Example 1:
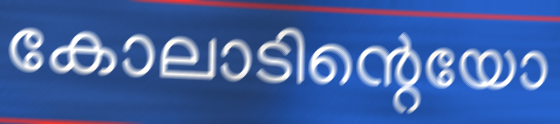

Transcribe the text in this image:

കോലാടിന്റെയോ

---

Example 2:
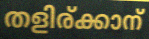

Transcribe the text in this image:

തളിര്ക്കാന്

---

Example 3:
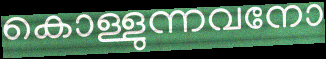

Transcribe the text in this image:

കൊള്ളുന്നവനോ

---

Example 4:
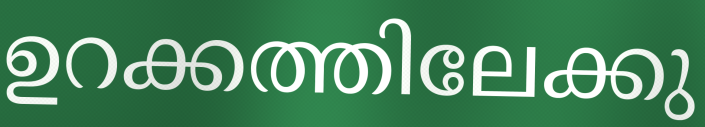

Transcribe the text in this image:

ഉറക്കത്തിലേക്കു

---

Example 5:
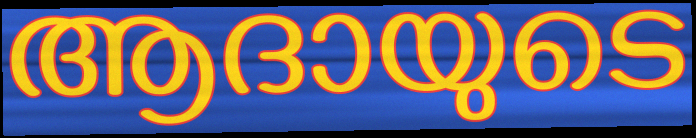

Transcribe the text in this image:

ആദായുടെ